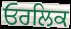
ਓਰਲਿਕ